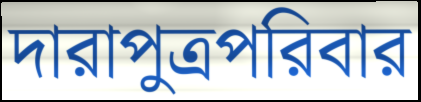
দারাপুত্রপরিবার